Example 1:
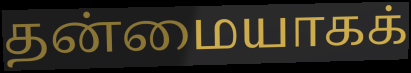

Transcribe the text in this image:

தன்மையாகக்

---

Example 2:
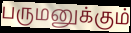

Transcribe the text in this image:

பருமனுக்கும்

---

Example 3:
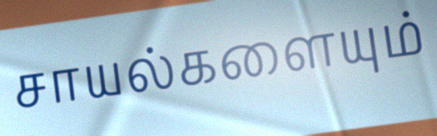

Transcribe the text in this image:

சாயல்களையும்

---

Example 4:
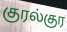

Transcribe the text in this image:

குரல்குர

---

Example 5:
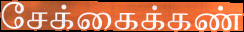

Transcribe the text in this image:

சேக்கைக்கண்